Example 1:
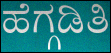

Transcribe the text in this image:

ಹೆಗ್ಗಡಿತಿ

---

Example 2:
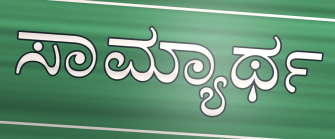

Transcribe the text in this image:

ಸಾಮ್ಯಾರ್ಥ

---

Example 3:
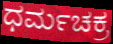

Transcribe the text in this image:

ಧರ್ಮಚಕ್ರ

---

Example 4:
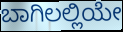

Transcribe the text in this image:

ಬಾಗಿಲಲ್ಲಿಯೇ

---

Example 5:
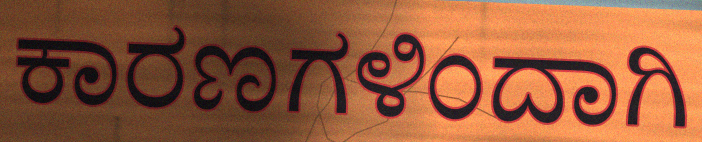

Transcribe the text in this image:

ಕಾರಣಗಳಿಂದಾಗಿ